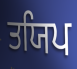
ਤਯਿਪ